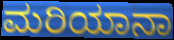
ಮರಿಯಾನಾ